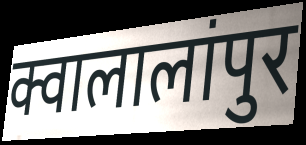
क्वालालांपुर